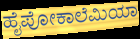
ಹೈಪೋಕಾಲೆಮಿಯಾ